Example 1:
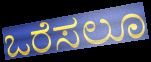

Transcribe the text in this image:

ಒರೆಸಲೂ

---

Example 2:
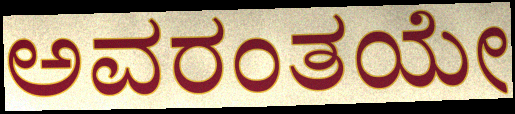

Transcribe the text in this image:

ಅವರಂತಯೇ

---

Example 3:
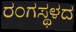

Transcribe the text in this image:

ರಂಗಸ್ಥಳದ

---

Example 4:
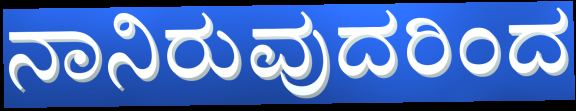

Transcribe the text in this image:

ನಾನಿರುವುದರಿಂದ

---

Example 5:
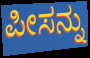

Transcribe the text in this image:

ಪೀಸನ್ನು